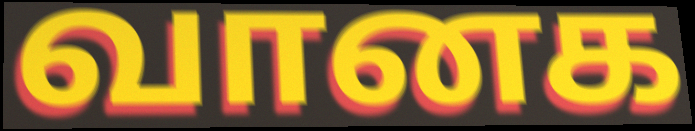
வானக